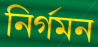
নিৰ্গমন